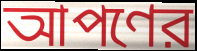
আপণের